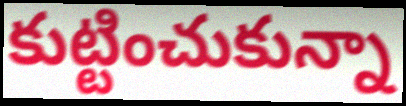
కుట్టించుకున్నా